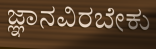
ಜ್ಞಾನವಿರಬೇಕು